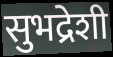
सुभद्रेशी